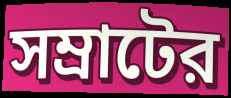
সম্রাটের